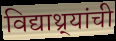
विद्याथ्र्यांची